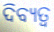
ଦିବ୍ୟତ୍ବ